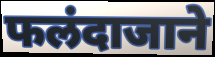
फलंदाजाने